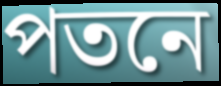
পতনে